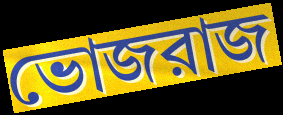
ভোজরাজ